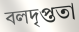
বলদৃপ্ততা